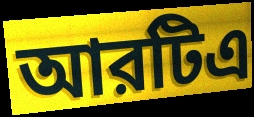
আরটিএ